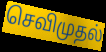
செவிமுதல்